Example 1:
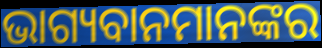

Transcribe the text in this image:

ଭାଗ୍ୟବାନମାନଙ୍କର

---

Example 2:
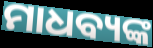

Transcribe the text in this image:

ମାଧବ୍ୟଙ୍କ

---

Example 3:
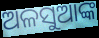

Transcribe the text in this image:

ଅଳସୁଆଙ୍କ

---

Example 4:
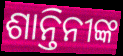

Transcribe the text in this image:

ଶାନ୍ତିନୀଙ୍କ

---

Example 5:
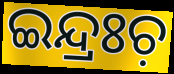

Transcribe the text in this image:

ଇନ୍ଦ୍ରଃଚ଼